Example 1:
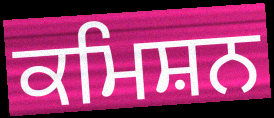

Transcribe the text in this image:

ਕਮਿਸ਼ਨ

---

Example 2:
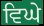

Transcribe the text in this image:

ਵਿਘੇ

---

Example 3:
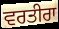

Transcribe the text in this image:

ਵਰਤੀਰਾ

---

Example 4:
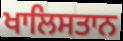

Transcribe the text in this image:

ਖਾਲਿਸਤਾਨ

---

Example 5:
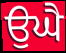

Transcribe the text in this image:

ਉਘੈ